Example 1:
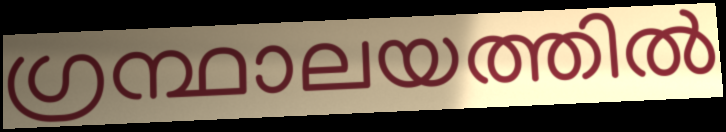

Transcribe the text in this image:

ഗ്രന്ഥാലയത്തിൽ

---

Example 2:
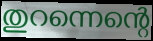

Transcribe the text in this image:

തുറന്നെന്റെ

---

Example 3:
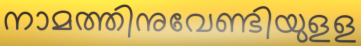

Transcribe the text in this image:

നാമത്തിനുവേണ്ടിയുളള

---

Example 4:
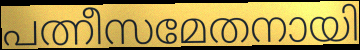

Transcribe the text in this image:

പത്നീസമേതനായി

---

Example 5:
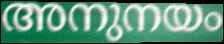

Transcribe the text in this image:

അനുനയം